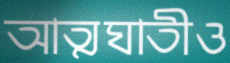
আত্মঘাতীও